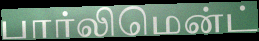
பார்லிமென்ட்